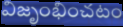
విజృంభించటం